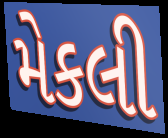
મેકલી